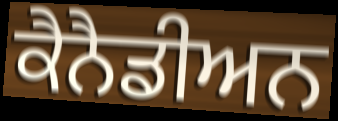
ਕੈਨੈਡੀਅਨ